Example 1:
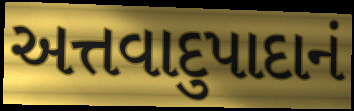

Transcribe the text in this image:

અત્તવાદુપાદાનં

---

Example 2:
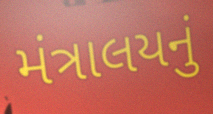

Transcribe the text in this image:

મંત્રાલયનું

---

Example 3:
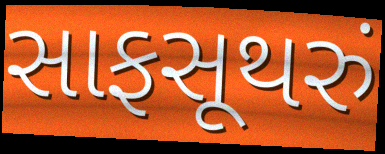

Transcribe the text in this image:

સાફસૂથરું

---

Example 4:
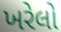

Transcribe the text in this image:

ખરેલો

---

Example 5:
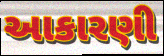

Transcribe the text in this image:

આકારણી